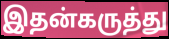
இதன்கருத்து